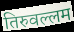
तिरुवल्लम